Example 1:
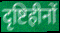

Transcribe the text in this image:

दृष्टिहीनों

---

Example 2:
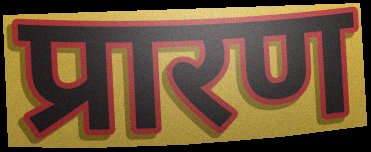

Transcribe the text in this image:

प्रारण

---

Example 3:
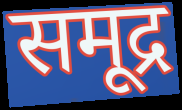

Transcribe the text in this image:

समूद्र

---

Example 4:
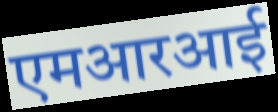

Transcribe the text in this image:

एमआरआई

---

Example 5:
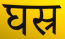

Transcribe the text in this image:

घस्र